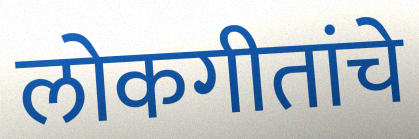
लोकगीतांचे